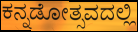
ಕನ್ನಡೋತ್ಸವದಲ್ಲಿ